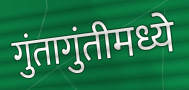
गुंतागुंतीमध्ये